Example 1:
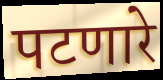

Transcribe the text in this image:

पटणारे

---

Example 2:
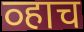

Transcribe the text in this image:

व्हाच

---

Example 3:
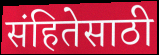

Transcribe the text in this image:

संहितेसाठी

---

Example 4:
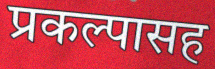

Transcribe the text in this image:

प्रकल्पासह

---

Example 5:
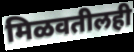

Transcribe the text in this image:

मिळवतीलही